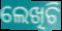
ଲେଖିଚି